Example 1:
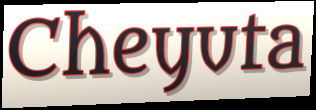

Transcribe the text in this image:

Cheyuta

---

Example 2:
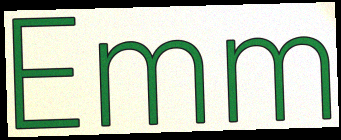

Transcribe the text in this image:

Emm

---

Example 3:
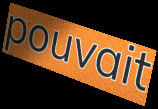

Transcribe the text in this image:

pouvait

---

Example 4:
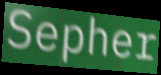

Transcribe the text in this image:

Sepher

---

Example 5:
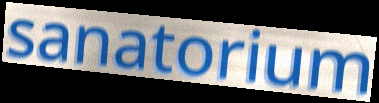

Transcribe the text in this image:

sanatorium